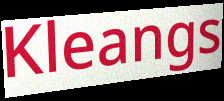
Kleangs